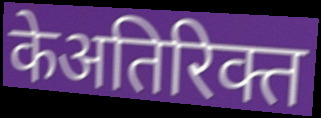
केअतिरिक्त